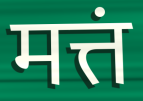
मत्तं